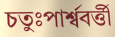
চতুঃপার্শ্ববর্ত্তী